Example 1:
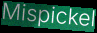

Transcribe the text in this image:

Mispickel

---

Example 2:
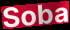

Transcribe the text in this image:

Soba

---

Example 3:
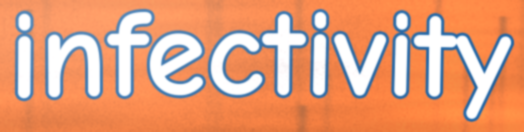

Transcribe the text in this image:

infectivity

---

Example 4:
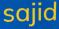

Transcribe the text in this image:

sajid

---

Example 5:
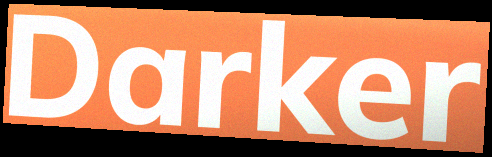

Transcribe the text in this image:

Darker